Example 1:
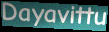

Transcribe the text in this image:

Dayavittu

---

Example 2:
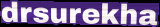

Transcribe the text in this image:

drsurekha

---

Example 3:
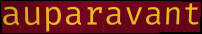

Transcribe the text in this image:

auparavant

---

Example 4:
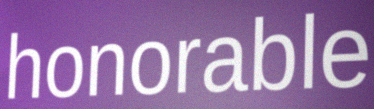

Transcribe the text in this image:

honorable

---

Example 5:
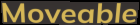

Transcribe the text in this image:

Moveable